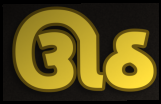
ઊઠ